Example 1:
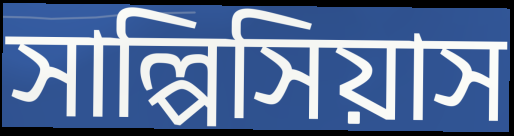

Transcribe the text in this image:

সাল্পিসিয়াস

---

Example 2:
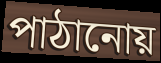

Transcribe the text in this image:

পাঠানোয়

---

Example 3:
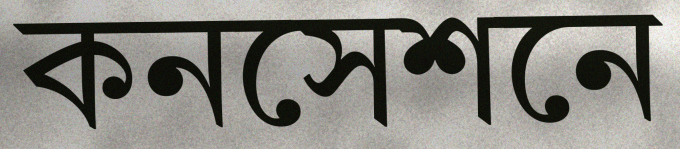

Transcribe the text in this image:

কনসেশনে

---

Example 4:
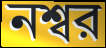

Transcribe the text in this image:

নশ্বর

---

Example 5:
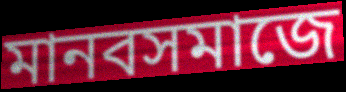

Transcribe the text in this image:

মানবসমাজে